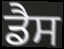
ਡੈਸ